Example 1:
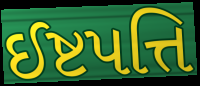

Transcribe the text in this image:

ઈષ્ટપત્તિ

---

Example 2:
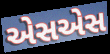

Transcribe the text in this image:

એસએસ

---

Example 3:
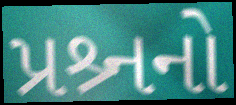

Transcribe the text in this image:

પ્રશ્ર્નનો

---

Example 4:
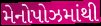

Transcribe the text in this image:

મેનોપોઝમાંથી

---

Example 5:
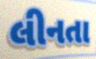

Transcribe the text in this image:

લીનતા